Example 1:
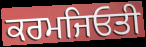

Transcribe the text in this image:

ਕਰਮਜਿਓਤੀ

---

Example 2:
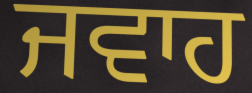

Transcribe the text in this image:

ਜਵਾਹ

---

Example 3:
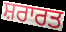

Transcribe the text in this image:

ਸ਼ਰਾਰਤ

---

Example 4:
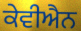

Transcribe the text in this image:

ਕੇਵੀਐਨ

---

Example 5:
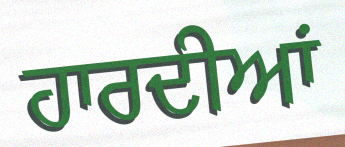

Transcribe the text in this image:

ਹਾਰਦੀਆਂ